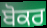
ਬੋਕਰ